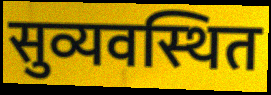
सुव्यवस्थित